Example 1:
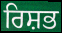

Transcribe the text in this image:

ਰਿਸ਼ਭ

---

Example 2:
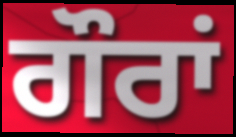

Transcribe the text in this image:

ਗੌਰਾਂ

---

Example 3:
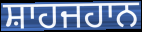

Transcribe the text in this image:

ਸ਼ਾਹਜਹਾਨ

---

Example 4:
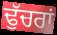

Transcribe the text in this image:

ਢੁੱਚਰਾਂ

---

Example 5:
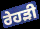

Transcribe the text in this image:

ਰੇਹੜੀ